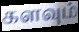
களவும்